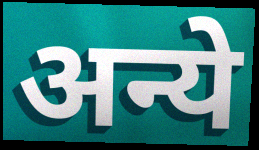
अन्ये